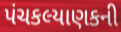
પંચકલ્યાણકની